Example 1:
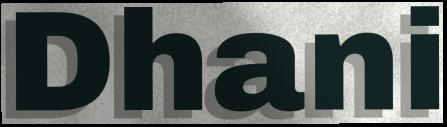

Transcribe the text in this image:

Dhani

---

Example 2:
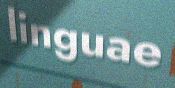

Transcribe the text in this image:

linguae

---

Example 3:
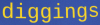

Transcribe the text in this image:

diggings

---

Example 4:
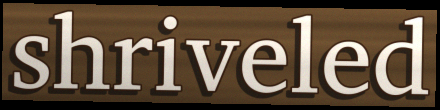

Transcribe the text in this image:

shriveled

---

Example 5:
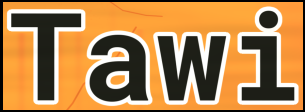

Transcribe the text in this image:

Tawi